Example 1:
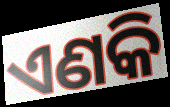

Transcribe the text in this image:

ଏଣକି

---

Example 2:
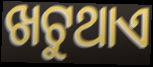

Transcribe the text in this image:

ଖଟୁଥାଏ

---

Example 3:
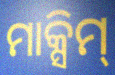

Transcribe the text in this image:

ମାକ୍ସିମ୍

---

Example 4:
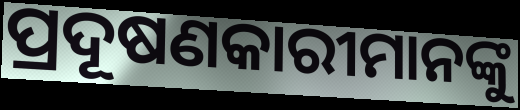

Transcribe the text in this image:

ପ୍ରଦୂଷଣକାରୀମାନଙ୍କୁ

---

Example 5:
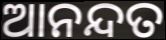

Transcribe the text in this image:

ଆନନ୍ଦତ